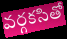
వర్గకసితో